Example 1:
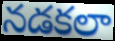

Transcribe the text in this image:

నడకలా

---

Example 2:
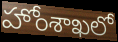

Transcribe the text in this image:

హోంశాఖలో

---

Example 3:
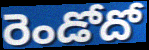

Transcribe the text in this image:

రెండోదో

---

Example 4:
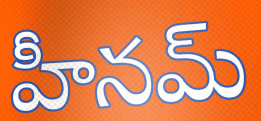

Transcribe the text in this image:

హీనమ్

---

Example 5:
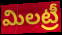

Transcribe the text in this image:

మిలట్రీ